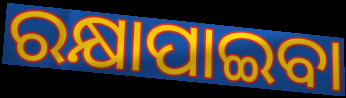
ରକ୍ଷାପାଇବା